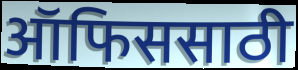
ऑफिससाठी